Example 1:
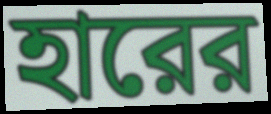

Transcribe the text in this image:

হারের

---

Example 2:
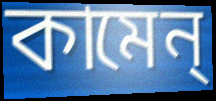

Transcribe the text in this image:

কামেন্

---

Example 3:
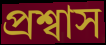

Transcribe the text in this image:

প্রশ্বাস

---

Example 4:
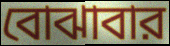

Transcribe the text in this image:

বোঝাবার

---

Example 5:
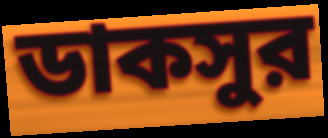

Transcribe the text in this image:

ডাকসুর